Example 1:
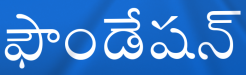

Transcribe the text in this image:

ఫౌండేషన్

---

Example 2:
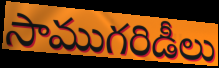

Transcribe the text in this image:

సాముగరిడీలు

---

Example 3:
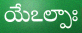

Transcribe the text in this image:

యేఽల్పాః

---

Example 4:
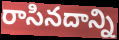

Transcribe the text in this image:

రాసినదాన్ని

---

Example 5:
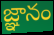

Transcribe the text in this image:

జ్ఞానం